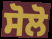
ਸੋਲੋ